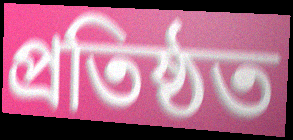
প্রতিষ্ঠত